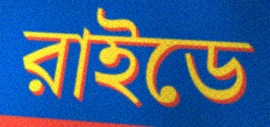
রাইডে